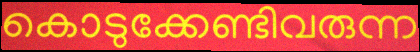
കൊടുക്കേണ്ടിവരുന്ന